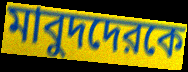
মাবুদদেরকে